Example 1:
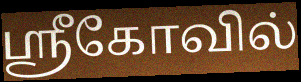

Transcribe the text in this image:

ஸ்ரீகோவில்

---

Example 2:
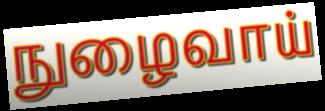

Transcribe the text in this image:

நுழைவாய்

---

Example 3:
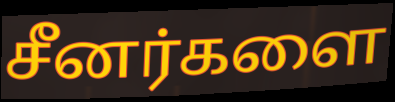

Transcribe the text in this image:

சீனர்களை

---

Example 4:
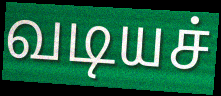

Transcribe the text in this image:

வடியச்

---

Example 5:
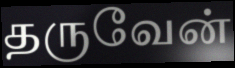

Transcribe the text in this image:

தருவேன்